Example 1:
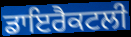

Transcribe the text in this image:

ਡਾਇਰੈਕਟਲੀ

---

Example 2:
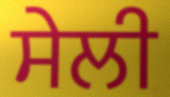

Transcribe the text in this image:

ਸੇਲੀ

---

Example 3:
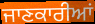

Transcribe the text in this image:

ਜਾਣਕਾਰੀਆਂ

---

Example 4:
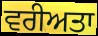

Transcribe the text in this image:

ਵਰੀਅਤਾ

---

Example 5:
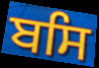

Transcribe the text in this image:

ਬਸਿ